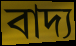
বাদ্য